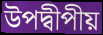
উপদ্বীপীয়